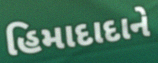
હિમાદાદાને